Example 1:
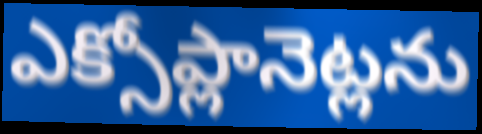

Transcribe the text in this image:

ఎక్సోప్లానెట్లను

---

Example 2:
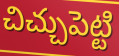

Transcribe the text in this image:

చిచ్చుపెట్టి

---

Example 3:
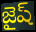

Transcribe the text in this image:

జైష్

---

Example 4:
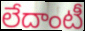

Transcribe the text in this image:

లేదాంటీ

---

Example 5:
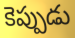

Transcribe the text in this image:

కెప్పుడు